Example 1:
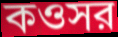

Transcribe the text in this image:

কওসর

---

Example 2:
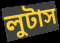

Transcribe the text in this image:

লুটাস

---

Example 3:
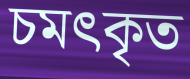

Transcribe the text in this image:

চমৎকৃত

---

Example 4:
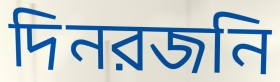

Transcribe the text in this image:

দিনরজনি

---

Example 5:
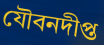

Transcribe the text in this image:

যৌবনদীপ্ত